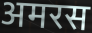
अमरस